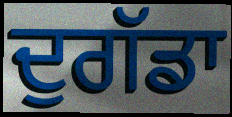
ਦੁਗੱਡਾ